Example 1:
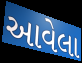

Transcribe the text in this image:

આવેલા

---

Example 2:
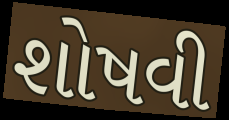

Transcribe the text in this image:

શોષવી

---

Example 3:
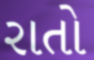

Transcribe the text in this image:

રાતો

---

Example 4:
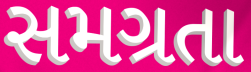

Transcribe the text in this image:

સમગ્રતા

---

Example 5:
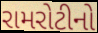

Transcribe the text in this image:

રામરોટીનો